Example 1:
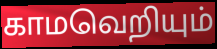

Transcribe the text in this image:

காமவெறியும்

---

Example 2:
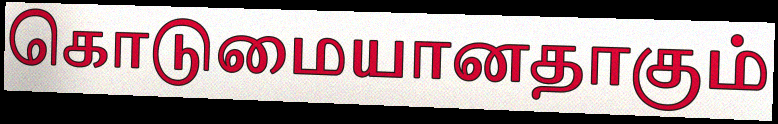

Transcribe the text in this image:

கொடுமையானதாகும்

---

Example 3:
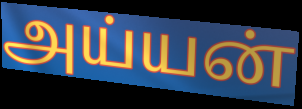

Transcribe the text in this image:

அய்யன்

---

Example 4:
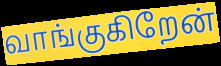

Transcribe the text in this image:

வாங்குகிறேன்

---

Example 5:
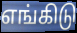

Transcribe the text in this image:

எங்கிடு